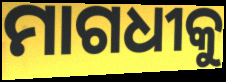
ମାଗଧୀକୁ